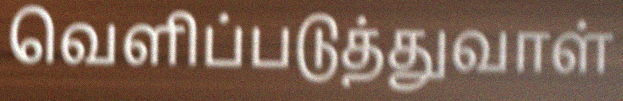
வெளிப்படுத்துவாள்